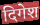
दिगेश